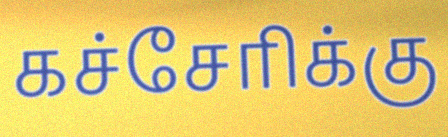
கச்சேரிக்கு